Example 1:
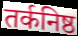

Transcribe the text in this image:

तर्कनिष्ठ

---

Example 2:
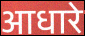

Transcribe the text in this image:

आधारे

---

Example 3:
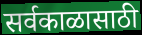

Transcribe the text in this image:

सर्वकाळासाठी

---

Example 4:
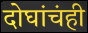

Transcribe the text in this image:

दोघांचंही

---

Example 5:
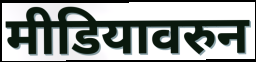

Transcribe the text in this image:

मीडियावरुन